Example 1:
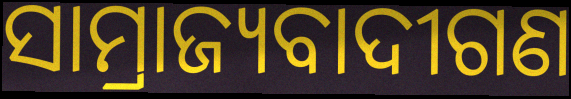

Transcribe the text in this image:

ସାମ୍ରାଜ୍ୟବାଦୀଗଣ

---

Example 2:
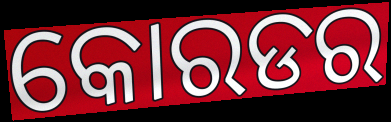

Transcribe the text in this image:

କୋରଡର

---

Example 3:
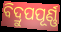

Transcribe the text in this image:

ବିଦ୍ରୁପପୂର୍ଣ୍ଣ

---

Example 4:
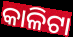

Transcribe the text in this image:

କାଳିଟା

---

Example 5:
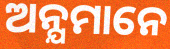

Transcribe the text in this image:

ଅନ୍ଯମାନେ